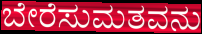
ಬೇರೆಸುಮತವನು